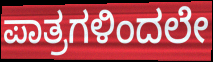
ಪಾತ್ರಗಳಿಂದಲೇ